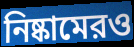
নিষ্কামেরও